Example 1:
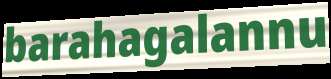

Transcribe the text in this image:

barahagalannu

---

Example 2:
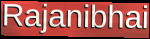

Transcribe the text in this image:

Rajanibhai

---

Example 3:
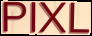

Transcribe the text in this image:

PIXL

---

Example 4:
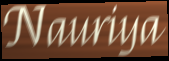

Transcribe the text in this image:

Nauriya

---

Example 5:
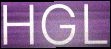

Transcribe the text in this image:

HGL